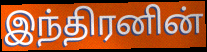
இந்திரனின்